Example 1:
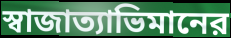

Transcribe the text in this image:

স্বাজাত্যাভিমানের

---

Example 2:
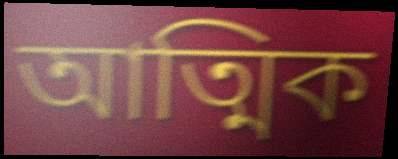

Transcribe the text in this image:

আত্মিক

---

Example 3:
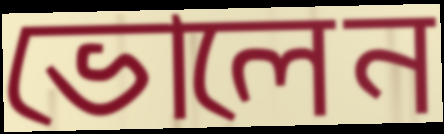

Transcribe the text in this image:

ভোলেন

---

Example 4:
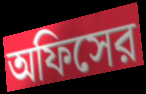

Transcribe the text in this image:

অফিসের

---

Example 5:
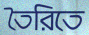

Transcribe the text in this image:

তৈরিতে